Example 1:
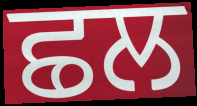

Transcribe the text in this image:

ਛਲ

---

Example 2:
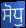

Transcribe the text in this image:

ਸੋਧੁ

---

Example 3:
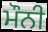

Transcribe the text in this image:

ਮੌਨੀ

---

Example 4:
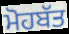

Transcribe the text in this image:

ਮੋਹਬੱਤ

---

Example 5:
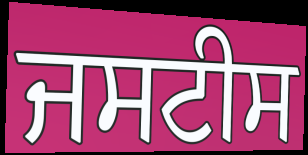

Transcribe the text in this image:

ਜਸਟੀਸ